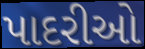
પાદરીઓ